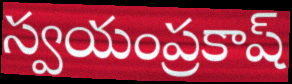
స్వయంప్రకాష్